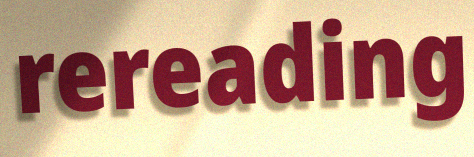
rereading